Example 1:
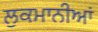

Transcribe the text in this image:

ਲੁਕਮਾਨੀਆਂ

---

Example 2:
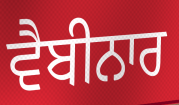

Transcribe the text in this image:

ਵੈਬੀਨਾਰ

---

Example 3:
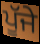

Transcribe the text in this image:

ਪੂੱਜੇ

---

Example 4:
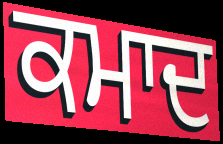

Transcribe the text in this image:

ਕਮਾਦ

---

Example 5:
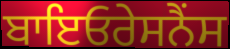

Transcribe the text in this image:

ਬਾਇਓਰੇਸਨੈਂਸ